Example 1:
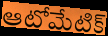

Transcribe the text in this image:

ఆటోమేటిక్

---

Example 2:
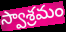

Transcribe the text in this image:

స్వాశ్రమం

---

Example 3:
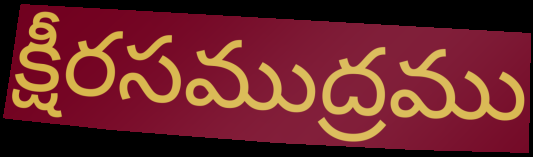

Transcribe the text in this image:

క్షీరసముద్రము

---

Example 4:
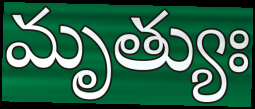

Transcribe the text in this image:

మృత్యుః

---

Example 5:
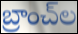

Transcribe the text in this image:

బ్రాంచ్‌ల